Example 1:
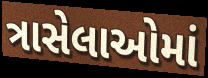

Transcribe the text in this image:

ત્રાસેલાઓમાં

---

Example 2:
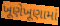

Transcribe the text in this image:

ખૂણેખૂણામાં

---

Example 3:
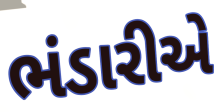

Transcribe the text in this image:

ભંડારીએ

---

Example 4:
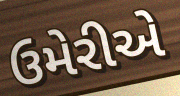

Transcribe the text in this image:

ઉમેરીએ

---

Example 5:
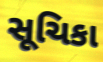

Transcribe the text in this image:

સૂચિકા